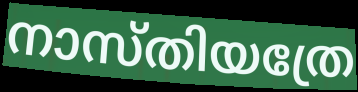
നാസ്തിയത്രേ